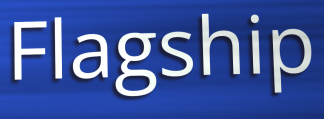
Flagship